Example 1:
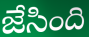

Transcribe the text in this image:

జేసింది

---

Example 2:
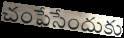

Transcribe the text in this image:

చంపేసేందుకు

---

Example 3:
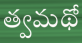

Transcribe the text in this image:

త్వమథో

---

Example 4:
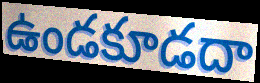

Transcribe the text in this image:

ఉండకూడదా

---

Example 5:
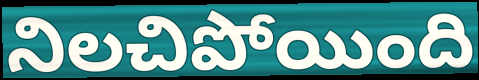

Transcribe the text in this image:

నిలచిపోయింది